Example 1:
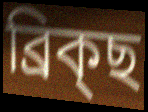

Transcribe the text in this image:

ব্ৰিক্ছ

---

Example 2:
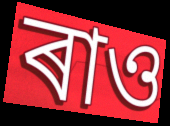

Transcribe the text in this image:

ৰাও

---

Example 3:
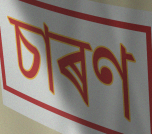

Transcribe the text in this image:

চাৰণ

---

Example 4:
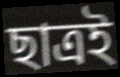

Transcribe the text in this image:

ছাত্ৰই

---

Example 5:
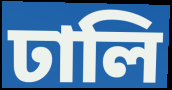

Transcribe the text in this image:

ঢালি